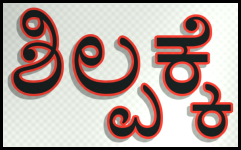
ಶಿಲ್ಪಕ್ಕೆ